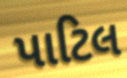
પાટિલ